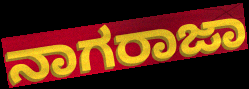
ನಾಗರಾಜಾ